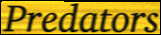
Predators